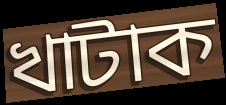
খাটাক